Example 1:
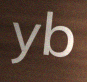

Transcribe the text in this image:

yb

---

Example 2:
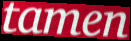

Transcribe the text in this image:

tamen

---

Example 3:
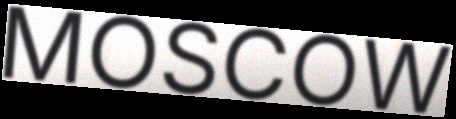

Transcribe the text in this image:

MOSCOW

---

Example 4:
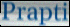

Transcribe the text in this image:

Prapti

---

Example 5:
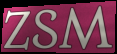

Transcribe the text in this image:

ZSM